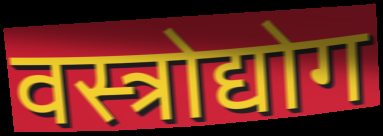
वस्त्रोद्योग